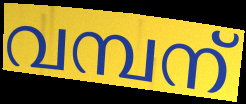
വമ്പന്